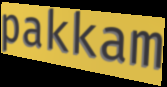
pakkam